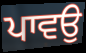
ਪਾਵਉ